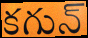
కగున్